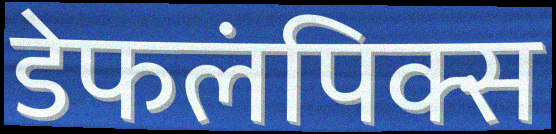
डेफलंपिक्स